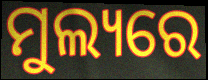
ମୁଲ୍ୟରେ